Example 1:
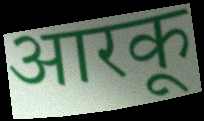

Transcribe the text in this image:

आरकू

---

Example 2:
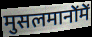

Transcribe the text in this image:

मुसलमानोंमें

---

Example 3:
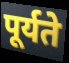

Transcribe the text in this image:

पूर्यते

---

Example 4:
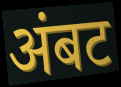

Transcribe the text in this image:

अंबट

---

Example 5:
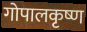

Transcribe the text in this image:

गोपालकृष्ण